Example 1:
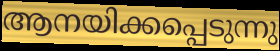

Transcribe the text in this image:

ആനയിക്കപ്പെടുന്നു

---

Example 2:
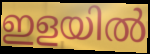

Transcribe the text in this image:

ഇളയിൽ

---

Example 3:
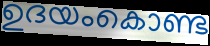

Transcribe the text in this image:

ഉദയംകൊണ്ട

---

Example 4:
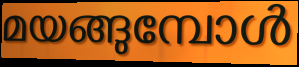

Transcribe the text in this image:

മയങ്ങുമ്പോൾ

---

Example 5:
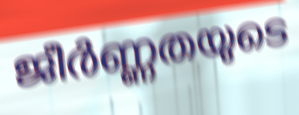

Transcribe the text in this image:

ജീർണ്ണതയുടെ